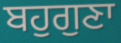
ਬਹੁਗੁਣਾ